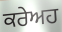
ਕਰੇਅਹ